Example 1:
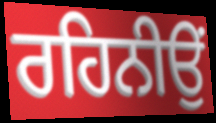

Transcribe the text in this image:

ਰਹਿਨੀਉਂ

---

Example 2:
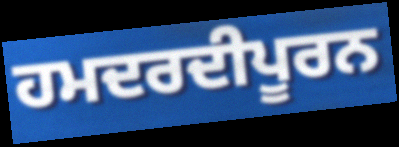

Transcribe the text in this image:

ਹਮਦਰਦੀਪੂਰਨ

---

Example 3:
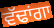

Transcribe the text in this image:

ਵੱਢਾਂਗਾ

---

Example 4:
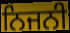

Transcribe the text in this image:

ਨਿਜਨੀ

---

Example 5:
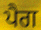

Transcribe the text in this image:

ਪੈਗ